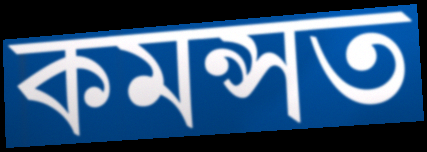
কমন্সত